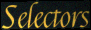
Selectors